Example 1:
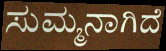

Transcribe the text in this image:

ಸುಮ್ಮನಾಗಿದೆ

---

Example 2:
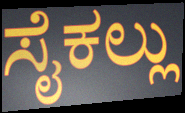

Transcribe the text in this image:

ಸೈಕಲ್ಲು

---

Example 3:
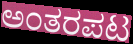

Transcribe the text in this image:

ಅಂತರಪಟ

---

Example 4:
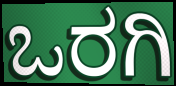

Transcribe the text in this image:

ಒರಗಿ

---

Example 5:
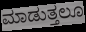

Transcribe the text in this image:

ಮಾಡುತ್ತಲೂ